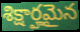
శిక్షార్హమైన